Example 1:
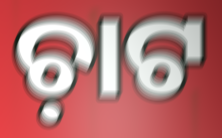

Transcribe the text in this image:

ଚ଼ାଟ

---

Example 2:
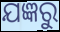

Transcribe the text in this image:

ଯଜ୍ଞରୁ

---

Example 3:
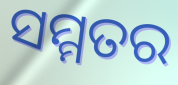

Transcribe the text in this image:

ସମ୍ମତର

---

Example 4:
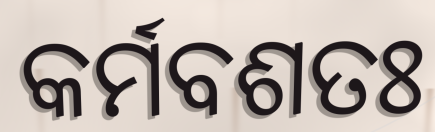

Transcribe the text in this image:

କର୍ମବଶତଃ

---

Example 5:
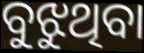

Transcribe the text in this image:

ବୁଝୁଥିବା